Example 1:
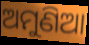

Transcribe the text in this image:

ଅମୁଣିଆ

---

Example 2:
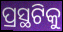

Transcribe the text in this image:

ପ୍ରସ୍ଥଟିକୁ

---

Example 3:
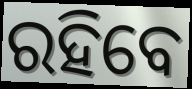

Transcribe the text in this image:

ରହିବେ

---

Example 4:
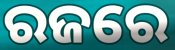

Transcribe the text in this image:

ରଜରେ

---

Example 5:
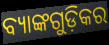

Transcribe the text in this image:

ବ୍ୟାଙ୍କଗୁଡ଼ିକର